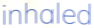
inhaled